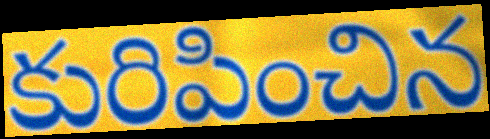
కురిపించిన